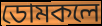
ডোমকলে